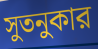
সুতনুকার